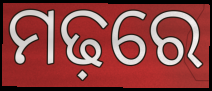
ମଢ଼ରେ